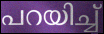
പറയിച്ച്